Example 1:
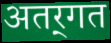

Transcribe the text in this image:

अतर्गत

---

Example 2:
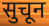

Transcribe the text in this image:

सुचून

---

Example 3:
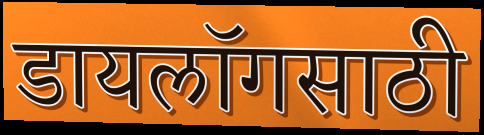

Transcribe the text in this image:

डायलॉगसाठी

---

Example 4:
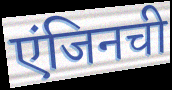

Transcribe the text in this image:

एंजिनची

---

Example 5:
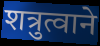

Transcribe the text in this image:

शत्रुत्वाने